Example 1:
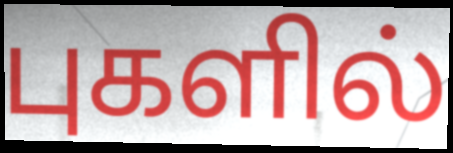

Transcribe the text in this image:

புகளில்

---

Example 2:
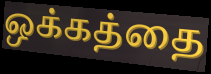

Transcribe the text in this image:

ஒக்கத்தை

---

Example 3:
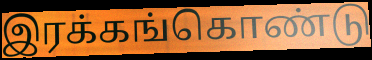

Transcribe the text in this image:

இரக்கங்கொண்டு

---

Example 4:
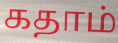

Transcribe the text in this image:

கதாம்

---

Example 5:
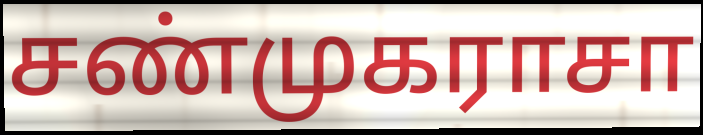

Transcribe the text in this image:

சண்முகராசா